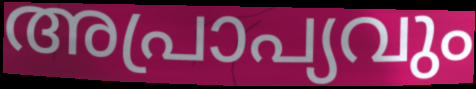
അപ്രാപ്യവും